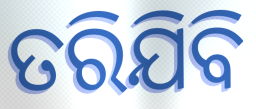
ତରିଯିବି